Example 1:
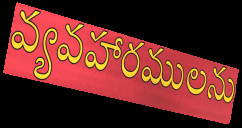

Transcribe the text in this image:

వ్యవహారములను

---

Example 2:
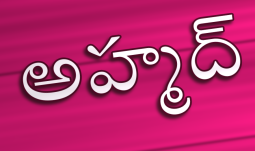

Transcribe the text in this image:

అహ్మద్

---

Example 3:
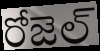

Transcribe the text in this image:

రోజెల్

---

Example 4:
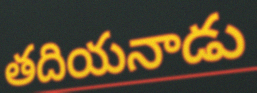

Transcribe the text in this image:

తదియనాడు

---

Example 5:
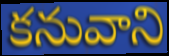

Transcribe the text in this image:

కనువాని